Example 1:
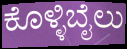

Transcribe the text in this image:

ಕೊಳ್ಳಿಬೈಲು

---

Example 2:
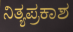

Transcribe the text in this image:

ನಿತ್ಯಪ್ರಕಾಶ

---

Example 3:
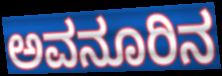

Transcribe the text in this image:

ಅವನೂರಿನ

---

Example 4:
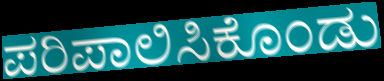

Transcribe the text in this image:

ಪರಿಪಾಲಿಸಿಕೊಂಡು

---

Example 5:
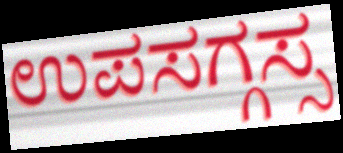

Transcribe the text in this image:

ಉಪಸಗ್ಗಸ್ಸ